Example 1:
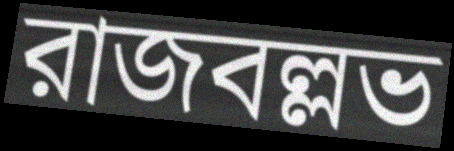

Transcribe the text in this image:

রাজবল্লভ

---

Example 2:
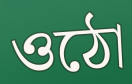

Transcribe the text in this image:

ওঠো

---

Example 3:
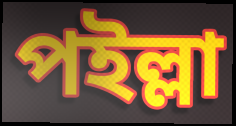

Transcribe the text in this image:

পইল্লা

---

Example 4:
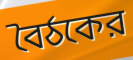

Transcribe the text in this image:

বৈঠকের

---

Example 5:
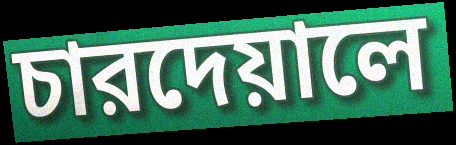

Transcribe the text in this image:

চারদেয়ালে